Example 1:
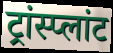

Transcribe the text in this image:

ट्रांस्प्लांट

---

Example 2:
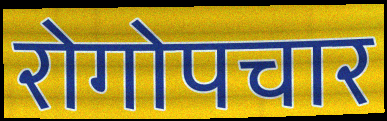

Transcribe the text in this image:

रोगोपचार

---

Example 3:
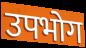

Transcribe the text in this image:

उपभोग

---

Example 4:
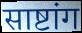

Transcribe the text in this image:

साष्टांग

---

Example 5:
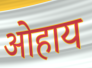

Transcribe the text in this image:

ओहाय